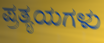
ಪ್ರತ್ಯಯಗಳು